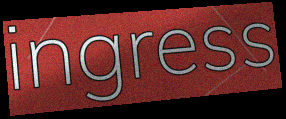
ingress